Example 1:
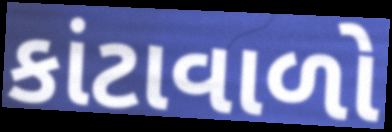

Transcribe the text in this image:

કાંટાવાળો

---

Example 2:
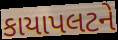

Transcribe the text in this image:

કાયાપલટને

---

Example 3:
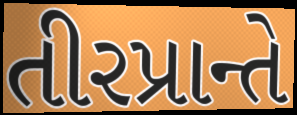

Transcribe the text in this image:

તીરપ્રાન્તે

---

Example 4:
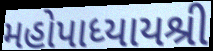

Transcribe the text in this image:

મહોપાધ્યાયશ્રી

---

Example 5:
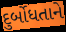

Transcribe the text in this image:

દુર્બોધતાને